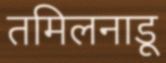
तमिलनाडू